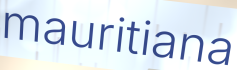
mauritiana